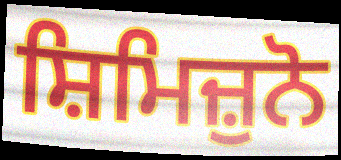
ਸ਼ਿਮਿਜ਼ੁਨੋ